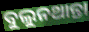
ବୁଲୁନଥାନ୍ତା